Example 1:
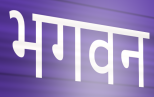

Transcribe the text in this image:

भगवन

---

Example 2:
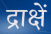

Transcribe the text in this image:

द्राक्षें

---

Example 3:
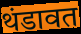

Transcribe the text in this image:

थंडावत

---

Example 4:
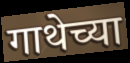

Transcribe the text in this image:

गाथेच्या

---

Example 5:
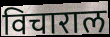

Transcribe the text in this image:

विचाराल